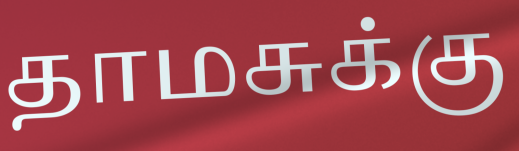
தாமசுக்கு